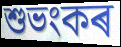
শুভংকৰ